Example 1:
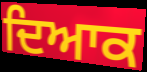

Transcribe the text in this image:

ਦਿਆਕ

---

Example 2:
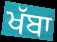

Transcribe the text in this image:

ਖੱਬਾ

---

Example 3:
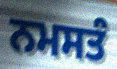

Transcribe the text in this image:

ਨਮਸਤੰ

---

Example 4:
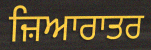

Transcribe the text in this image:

ਜ਼ਿਆਰਾਤਰ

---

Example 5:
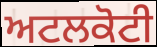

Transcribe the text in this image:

ਅਟਲਕੋਟੀ